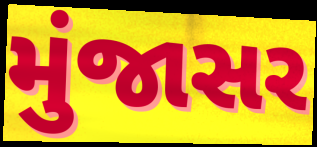
મુંજાસર